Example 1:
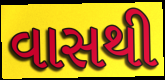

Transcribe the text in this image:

વાસથી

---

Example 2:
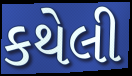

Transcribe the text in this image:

કથેલી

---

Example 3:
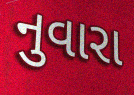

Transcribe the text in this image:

નુવારા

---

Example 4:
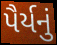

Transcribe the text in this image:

પૈર્યનું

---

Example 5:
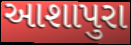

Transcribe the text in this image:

આશાપુરા